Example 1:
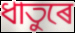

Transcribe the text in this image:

ধাতুৰে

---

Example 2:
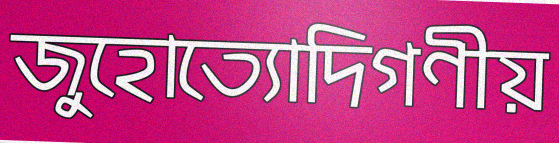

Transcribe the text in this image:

জুহোত্যোদিগণীয়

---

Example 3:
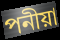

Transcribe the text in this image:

পনীয়া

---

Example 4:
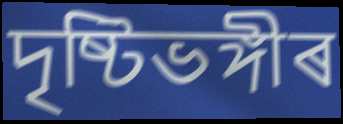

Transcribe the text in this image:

দৃষ্টিভঙ্গীৰ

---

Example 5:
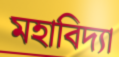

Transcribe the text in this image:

মহাবিদ্যা